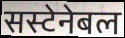
सस्टेनेबल